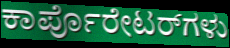
ಕಾರ್ಪೊರೇಟರ್‌ಗಳು